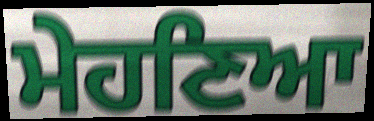
ਮੇਹਣਿਆ